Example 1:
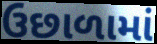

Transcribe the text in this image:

ઉછાળામાં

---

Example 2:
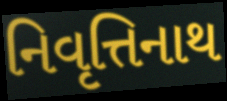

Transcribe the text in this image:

નિવૃત્તિનાથ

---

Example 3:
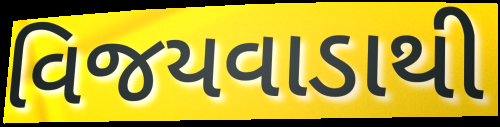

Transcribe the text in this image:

વિજયવાડાથી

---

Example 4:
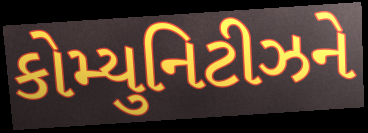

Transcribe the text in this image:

કોમ્યુનિટીઝને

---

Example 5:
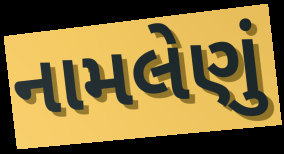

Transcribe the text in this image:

નામલેણું